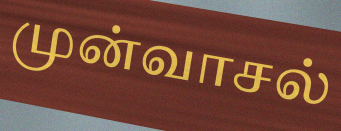
முன்வாசல்